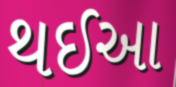
થઈઆ